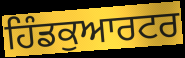
ਹਿੰਡਕੁਆਰਟਰ